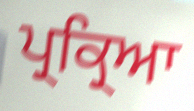
ਪ੍ਰਕ੍ਰਿਆ